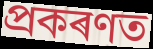
প্ৰকৰণত